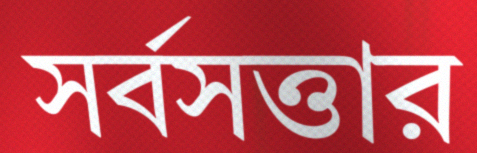
সর্বসত্তার